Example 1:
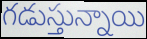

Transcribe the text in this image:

గడుస్తున్నాయి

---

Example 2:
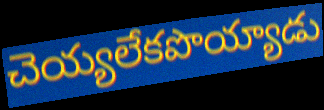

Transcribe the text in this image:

చెయ్యలేకపొయ్యాడు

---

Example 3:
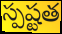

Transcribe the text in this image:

స్పష్టత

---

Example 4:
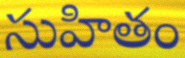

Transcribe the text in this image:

సుహితం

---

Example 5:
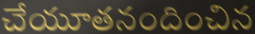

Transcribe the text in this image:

చేయూతనందించిన